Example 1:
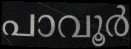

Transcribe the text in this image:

പാവൂർ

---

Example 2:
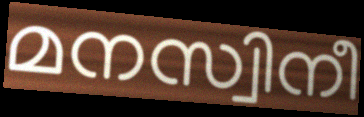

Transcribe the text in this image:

മനസ്വിനീ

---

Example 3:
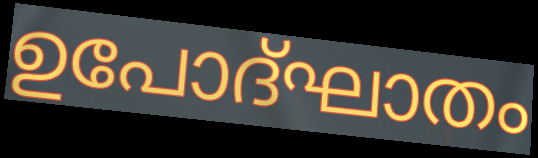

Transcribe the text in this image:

ഉപോദ്ഘാതം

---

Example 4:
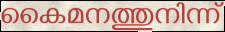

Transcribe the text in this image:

കൈമനത്തുനിന്ന്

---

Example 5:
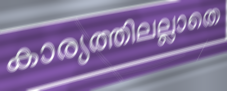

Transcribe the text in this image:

കാര്യത്തിലല്ലാതെ